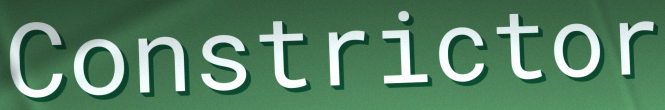
Constrictor